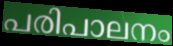
പരിപാലനം